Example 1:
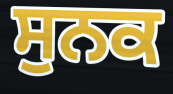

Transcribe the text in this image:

ਸੁਨਕ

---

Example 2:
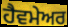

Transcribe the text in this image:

ਹੈਵਮੇਅਰ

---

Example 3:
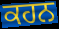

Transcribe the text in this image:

ਕਹਨ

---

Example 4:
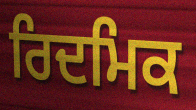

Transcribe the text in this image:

ਰਿਦਮਿਕ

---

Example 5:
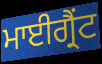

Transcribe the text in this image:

ਮਾਈਗ੍ਰੈਂਟ